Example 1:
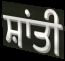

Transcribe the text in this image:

ਸ਼ਾਂਤੀ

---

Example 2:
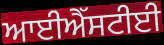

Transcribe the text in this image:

ਆਈਐੱਸਟੀਈ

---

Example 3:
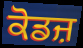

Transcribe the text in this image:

ਕੋਡਜ਼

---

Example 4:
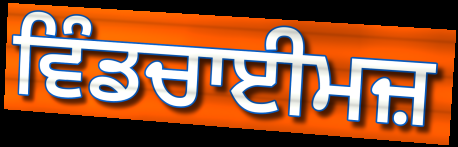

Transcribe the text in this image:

ਵਿੰਡਚਾਈਮਜ਼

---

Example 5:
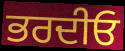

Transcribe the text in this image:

ਭਰਦੀਓ